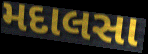
મદાલસા